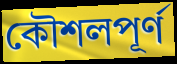
কৌশলপূর্ণ